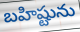
బహిష్టును